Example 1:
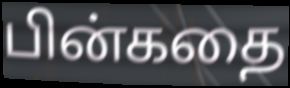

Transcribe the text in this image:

பின்கதை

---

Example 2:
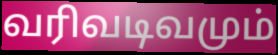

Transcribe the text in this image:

வரிவடிவமும்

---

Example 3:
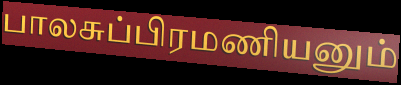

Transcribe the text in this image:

பாலசுப்பிரமணியனும்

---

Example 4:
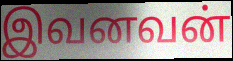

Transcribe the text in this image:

இவனவன்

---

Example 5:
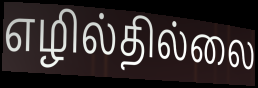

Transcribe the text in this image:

எழில்தில்லை